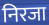
निरजा